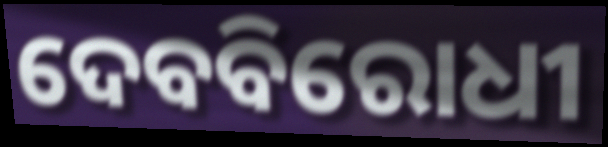
ଦେବବିରୋଧୀ